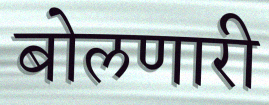
बोलणारी